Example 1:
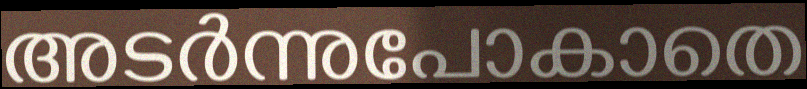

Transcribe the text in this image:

അടർന്നുപോകാതെ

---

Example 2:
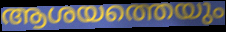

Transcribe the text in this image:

ആശയത്തെയും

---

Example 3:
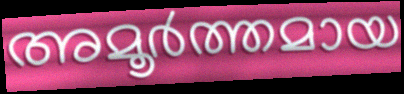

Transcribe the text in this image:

അമൂർത്തമായ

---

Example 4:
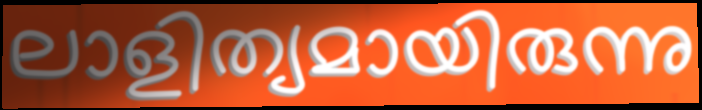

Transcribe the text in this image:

ലാളിത്യമായിരുന്നു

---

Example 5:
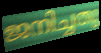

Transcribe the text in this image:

ജനിച്ചതു